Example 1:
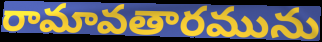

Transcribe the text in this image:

రామావతారమును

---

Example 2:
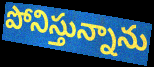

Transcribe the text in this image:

పోనిస్తున్నాను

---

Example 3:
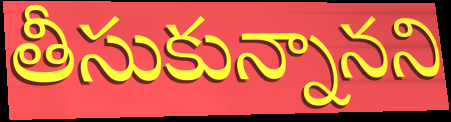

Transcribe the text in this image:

తీసుకున్నానని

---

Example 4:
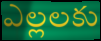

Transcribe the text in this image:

ఎల్లలకు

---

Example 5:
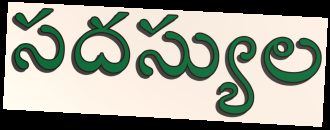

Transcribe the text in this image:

సదస్యుల